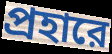
প্রহারে